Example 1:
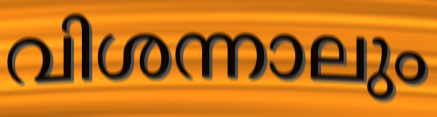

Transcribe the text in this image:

വിശന്നാലും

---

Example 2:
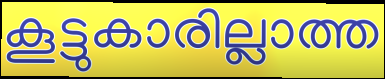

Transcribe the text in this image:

കൂട്ടുകാരില്ലാത്ത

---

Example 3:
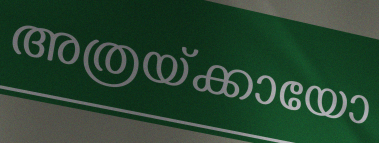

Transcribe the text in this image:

അത്രയ്‌ക്കായോ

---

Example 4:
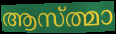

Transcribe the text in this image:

ആസ്ത്മാ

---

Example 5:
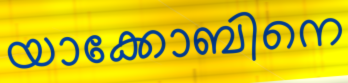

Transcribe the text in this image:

യാക്കോബിനെ